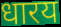
धारय